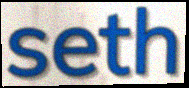
seth